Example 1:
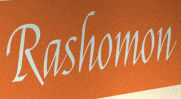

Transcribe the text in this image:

Rashomon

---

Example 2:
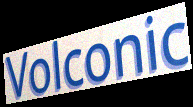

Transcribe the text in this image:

Volconic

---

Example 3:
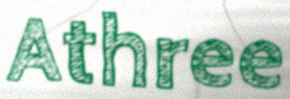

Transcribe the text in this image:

Athree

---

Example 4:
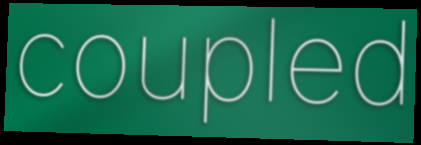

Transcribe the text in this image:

coupled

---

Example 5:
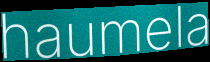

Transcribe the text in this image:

haumela